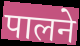
पालने